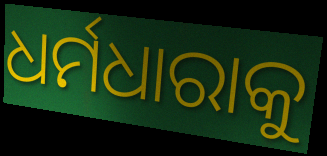
ଧର୍ମଧାରାକୁ